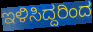
ಇಳಿಸಿದ್ದರಿಂದ